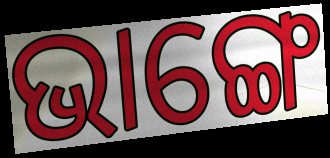
ଭାଙ୍ଗେ